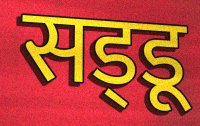
सड्‌डू